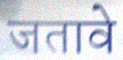
जतावे